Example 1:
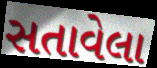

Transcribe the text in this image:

સતાવેલા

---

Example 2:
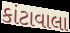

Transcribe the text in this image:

કાંટાવાલા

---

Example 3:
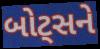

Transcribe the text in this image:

બોટ્સને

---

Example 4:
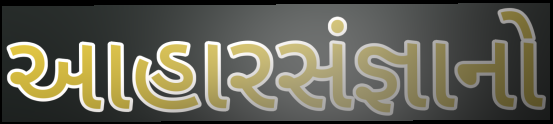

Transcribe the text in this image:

આહારસંજ્ઞાનો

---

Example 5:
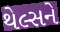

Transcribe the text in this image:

થેલ્સને